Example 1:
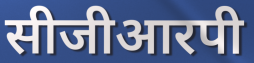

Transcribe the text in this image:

सीजीआरपी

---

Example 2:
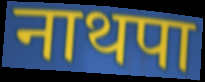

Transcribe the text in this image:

नाथपा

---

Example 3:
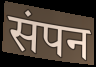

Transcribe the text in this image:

संपन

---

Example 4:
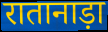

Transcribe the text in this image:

रातानाड़ा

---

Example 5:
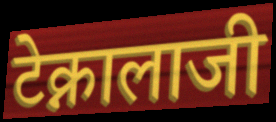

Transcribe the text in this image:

टेक्नालाजी